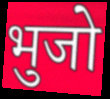
भुजो